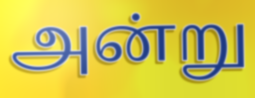
அன்று